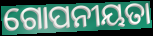
ଗୋପନୀୟତା